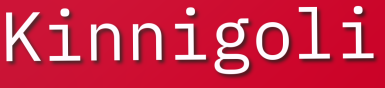
Kinnigoli